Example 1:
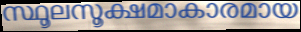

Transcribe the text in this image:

സ്ഥൂലസൂക്ഷമാകാരമായ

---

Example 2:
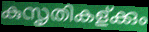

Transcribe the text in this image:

കുസൃതികള്ക്കും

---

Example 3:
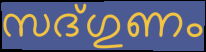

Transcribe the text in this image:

സദ്ഗുണം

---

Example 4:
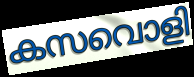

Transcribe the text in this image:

കസവൊളി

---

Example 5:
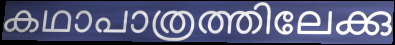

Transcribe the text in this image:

കഥാപാത്രത്തിലേക്കു